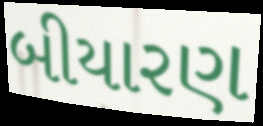
બીયારણ